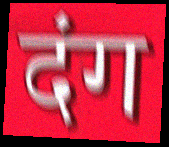
दंग